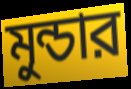
মুন্ডার